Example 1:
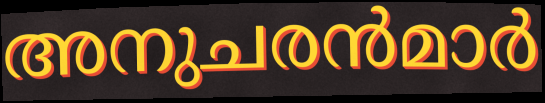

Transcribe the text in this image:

അനുചരൻമാർ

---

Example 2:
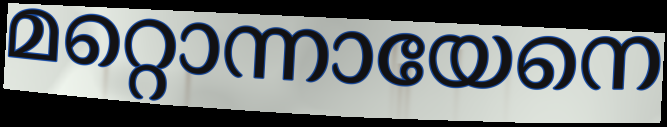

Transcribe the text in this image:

മറ്റൊന്നായേനെ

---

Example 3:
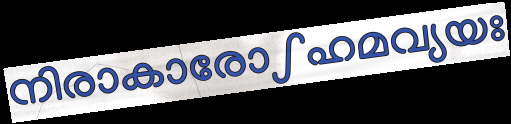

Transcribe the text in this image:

നിരാകാരോഽഹമവ്യയഃ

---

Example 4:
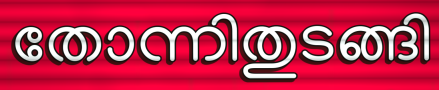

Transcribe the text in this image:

തോന്നിതുടങ്ങി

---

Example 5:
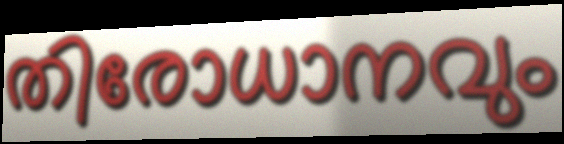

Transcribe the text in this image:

തിരോധാനവും